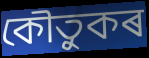
কৌতুকৰ